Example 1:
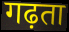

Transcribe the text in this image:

गढ़ता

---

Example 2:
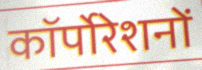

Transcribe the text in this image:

कॉर्पोरेशनों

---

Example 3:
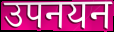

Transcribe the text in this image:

उपनयन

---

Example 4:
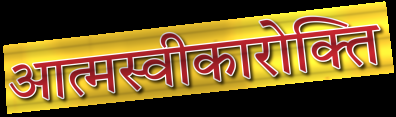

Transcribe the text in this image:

आत्मस्वीकारोक्ति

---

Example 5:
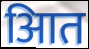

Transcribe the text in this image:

आित